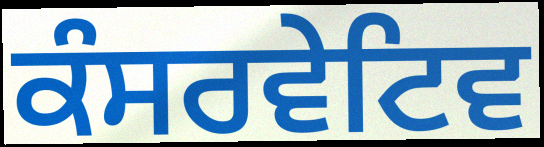
ਕੰਸਰਵੇਟਿਵ